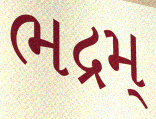
ભદ્રમ્